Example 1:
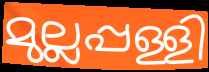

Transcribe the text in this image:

മുല്ലപ്പള്ളി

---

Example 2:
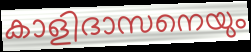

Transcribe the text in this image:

കാളിദാസനെയും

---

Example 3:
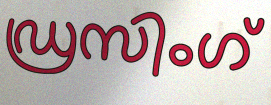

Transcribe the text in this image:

ഡ്രസിംഗ്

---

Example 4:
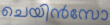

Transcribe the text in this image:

ചെയിൻസോ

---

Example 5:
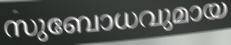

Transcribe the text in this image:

സുബോധവുമായ